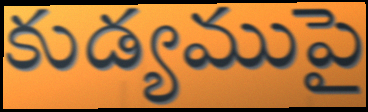
కుడ్యముపై